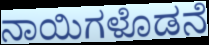
ನಾಯಿಗಳೊಡನೆ